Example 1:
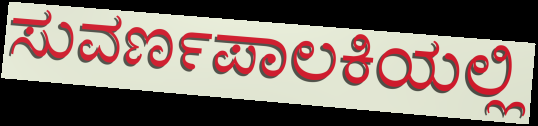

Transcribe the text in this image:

ಸುವರ್ಣಪಾಲಕಿಯಲ್ಲಿ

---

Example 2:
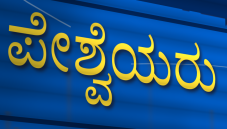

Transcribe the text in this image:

ಪೇಶ್ವೆಯರು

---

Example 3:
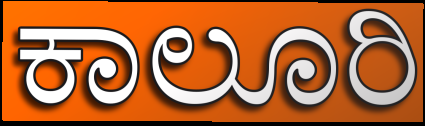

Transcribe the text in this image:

ಕಾಲೂರಿ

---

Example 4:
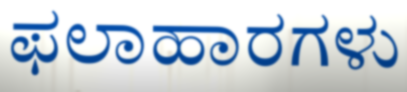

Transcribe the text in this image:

ಫಲಾಹಾರಗಳು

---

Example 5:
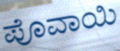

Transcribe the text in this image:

ಪೊವಾಯಿ